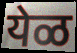
येळ